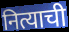
नित्याची